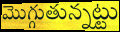
మొగ్గుతున్నట్టు